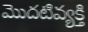
మొదటివ్యక్తి